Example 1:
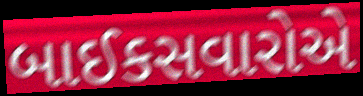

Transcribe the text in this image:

બાઈકસવારોએ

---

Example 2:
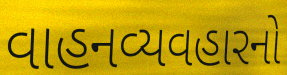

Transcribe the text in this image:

વાહનવ્યવહારનો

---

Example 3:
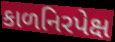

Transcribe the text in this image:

કાળનિરપેક્ષ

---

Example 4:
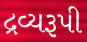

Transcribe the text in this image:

દ્રવ્યરૂપી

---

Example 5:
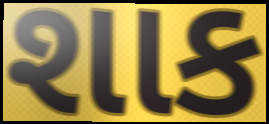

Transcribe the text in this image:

શાક